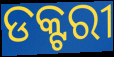
ଡକ୍ଟରୀ